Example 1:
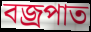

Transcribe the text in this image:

বজ্ৰপাত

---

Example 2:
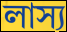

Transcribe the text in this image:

লাস্য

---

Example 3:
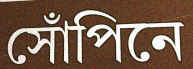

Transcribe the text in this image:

সোঁপিনে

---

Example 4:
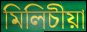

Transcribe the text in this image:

মিলিচীয়া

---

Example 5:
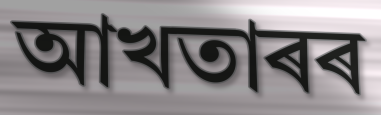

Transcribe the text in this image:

আখতাৰৰ